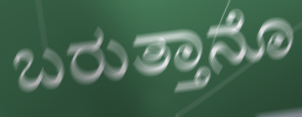
ಬರುತ್ತಾನೊ